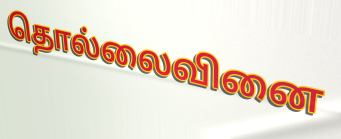
தொல்லைவினை